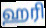
ஹரி